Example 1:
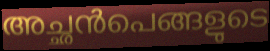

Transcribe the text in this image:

അച്ഛൻപെങ്ങളുടെ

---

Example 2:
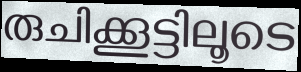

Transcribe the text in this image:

രുചിക്കൂട്ടിലൂടെ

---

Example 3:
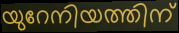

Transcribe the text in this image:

യുറേനിയത്തിന്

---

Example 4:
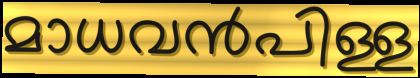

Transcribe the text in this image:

മാധവൻപിള്ള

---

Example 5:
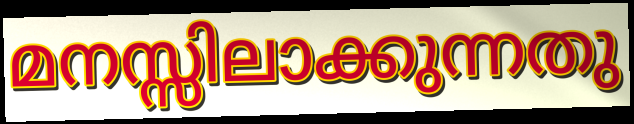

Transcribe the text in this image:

മനസ്സിലാക്കുന്നതു